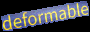
deformable